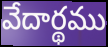
వేదార్థము